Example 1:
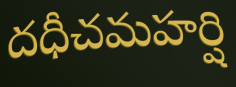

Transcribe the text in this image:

దధీచమహర్షి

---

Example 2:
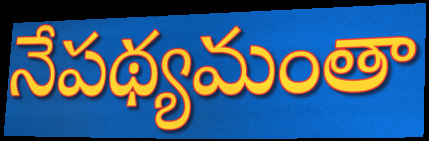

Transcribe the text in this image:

నేపథ్యమంతా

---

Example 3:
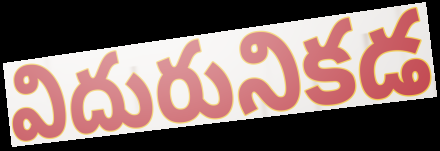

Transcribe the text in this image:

విదురునికడ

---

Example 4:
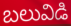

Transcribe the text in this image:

బలువిడి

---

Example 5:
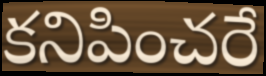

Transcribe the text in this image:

కనిపించరే